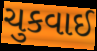
ચુકવાઈ